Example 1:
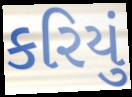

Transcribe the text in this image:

કરિયું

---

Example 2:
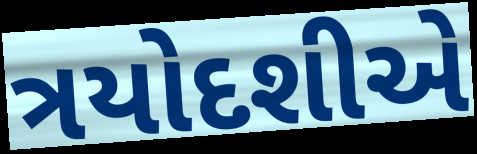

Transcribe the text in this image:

ત્રયોદશીએ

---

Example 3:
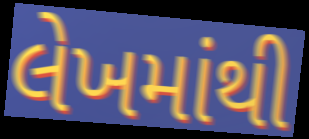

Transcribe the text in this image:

લેખમાંથી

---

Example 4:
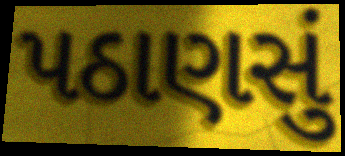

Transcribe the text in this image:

પઠાણસું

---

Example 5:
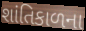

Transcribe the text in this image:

શાંતિકાળના